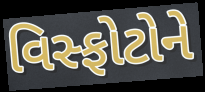
વિસ્ફોટોને